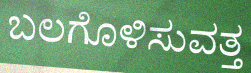
ಬಲಗೊಳಿಸುವತ್ತ